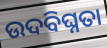
ଉଦବିଘ୍ନତା